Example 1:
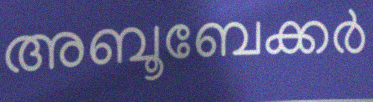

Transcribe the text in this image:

അബൂബേക്കർ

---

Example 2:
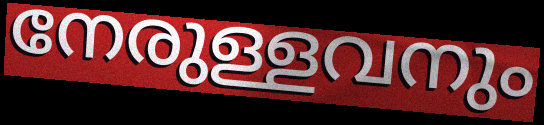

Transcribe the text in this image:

നേരുള്ളവനും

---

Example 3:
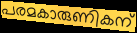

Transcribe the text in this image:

പരമകാരുണികന്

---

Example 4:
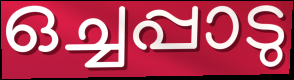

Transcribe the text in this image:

ഒച്ചപ്പാടു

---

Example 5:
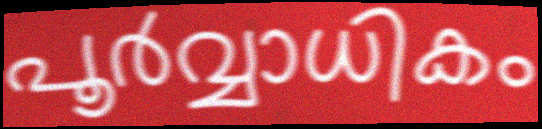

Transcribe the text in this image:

പൂർവ്വാധികം